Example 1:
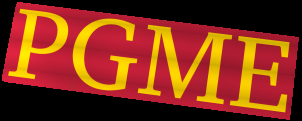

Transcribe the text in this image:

PGME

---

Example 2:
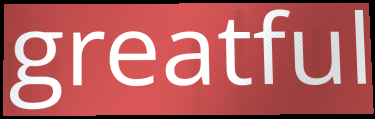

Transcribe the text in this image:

greatful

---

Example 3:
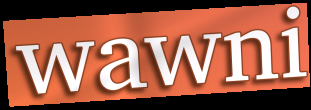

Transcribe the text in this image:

wawni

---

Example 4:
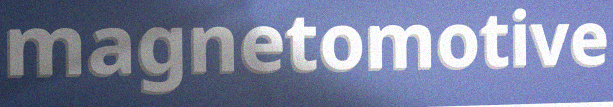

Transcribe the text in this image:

magnetomotive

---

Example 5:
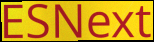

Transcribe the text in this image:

ESNext